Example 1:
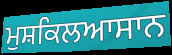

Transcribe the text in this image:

ਮੁਸ਼ਕਿਲਆਸਾਨ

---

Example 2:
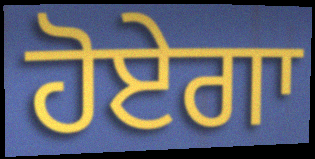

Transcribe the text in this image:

ਹੋਏਗਾ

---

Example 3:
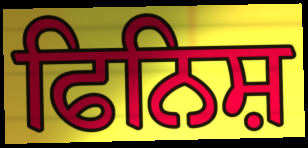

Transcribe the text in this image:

ਫਿਨਿਸ਼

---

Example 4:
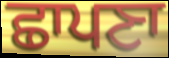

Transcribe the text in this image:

ਛਾਪਣਾ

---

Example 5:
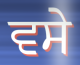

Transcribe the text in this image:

ਵਸੇ